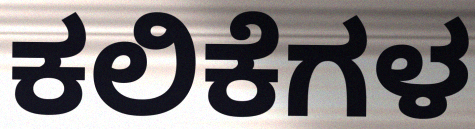
ಕಲಿಕೆಗಳ